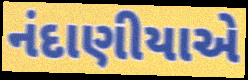
નંદાણીયાએ